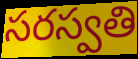
సరస్వతి